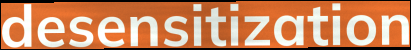
desensitization